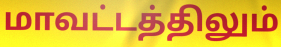
மாவட்டத்திலும்